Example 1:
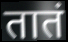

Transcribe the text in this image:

तातं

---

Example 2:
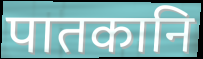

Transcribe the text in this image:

पातकानि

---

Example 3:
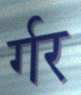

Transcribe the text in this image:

र्गर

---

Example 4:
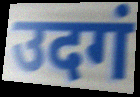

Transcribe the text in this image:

उदगं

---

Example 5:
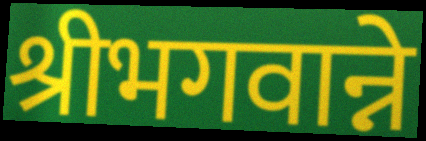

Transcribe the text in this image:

श्रीभगवान्ने